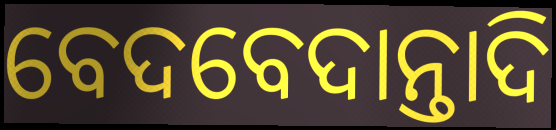
ବେଦବେଦାନ୍ତାଦି